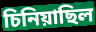
চিনিয়াছিল